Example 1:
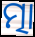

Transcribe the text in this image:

ତ୍ମା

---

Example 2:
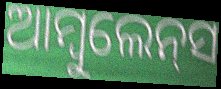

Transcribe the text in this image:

ଆମ୍ବୁଲେନ୍‌ସ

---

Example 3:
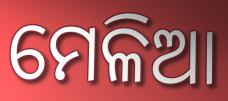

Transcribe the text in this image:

ମେଳିଆ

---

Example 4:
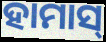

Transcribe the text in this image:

ହାମାସ୍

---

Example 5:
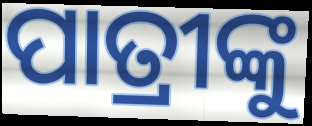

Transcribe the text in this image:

ପାତ୍ରୀଙ୍କୁ